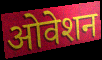
ओवेशन